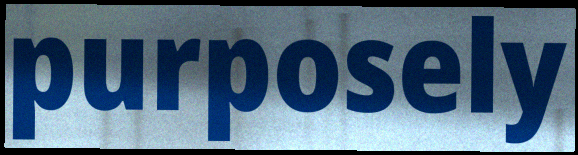
purposely